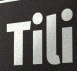
Tili